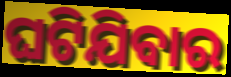
ଘଟିଯିବାର